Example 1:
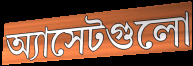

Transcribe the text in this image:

অ্যাসেটগুলো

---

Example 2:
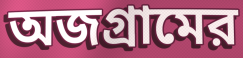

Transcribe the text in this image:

অজগ্রামের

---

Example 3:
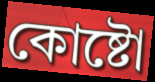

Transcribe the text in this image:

কোষ্টো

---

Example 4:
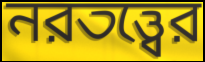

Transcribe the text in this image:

নরতত্ত্বের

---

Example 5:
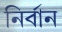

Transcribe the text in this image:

নির্বান